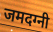
जमदग्नी